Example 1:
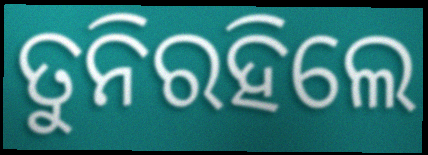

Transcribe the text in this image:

ତୁନିରହିଲେ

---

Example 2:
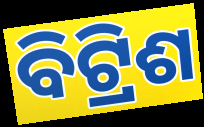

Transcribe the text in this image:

ବିଟ୍ରିଶ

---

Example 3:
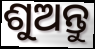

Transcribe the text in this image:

ଶୁଅନ୍ତୁ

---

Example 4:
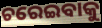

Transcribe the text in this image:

ଚରେଇବାକୁ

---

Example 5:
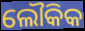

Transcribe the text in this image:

ଲୌକିକ